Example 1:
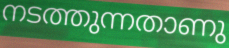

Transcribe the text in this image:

നടത്തുന്നതാണു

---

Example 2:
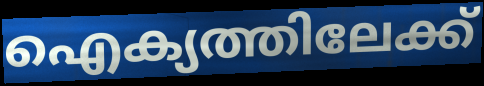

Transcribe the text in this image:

ഐക്യത്തിലേക്ക്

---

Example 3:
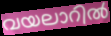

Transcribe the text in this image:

വയലാറിൽ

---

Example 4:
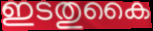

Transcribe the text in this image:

ഇടതുകൈ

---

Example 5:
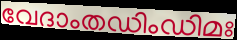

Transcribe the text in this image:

വേദാംതഡിംഡിമഃ